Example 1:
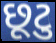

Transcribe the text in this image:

છૂટુ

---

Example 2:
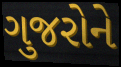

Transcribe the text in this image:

ગુજરોને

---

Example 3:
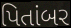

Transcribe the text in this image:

પિતાંબર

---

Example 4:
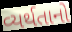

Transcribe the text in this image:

વ્યર્થતાનો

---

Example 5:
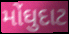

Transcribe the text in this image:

મોંઘુદાટ